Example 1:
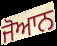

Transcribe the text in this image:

ਜੋਆਨ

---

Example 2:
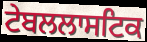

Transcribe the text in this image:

ਟੇਬਲਲਾਸਟਿਕ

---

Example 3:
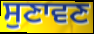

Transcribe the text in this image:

ਸੁਣਾਵਣ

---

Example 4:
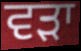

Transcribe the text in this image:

ਵੜਾ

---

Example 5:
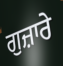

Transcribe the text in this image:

ਗੁਜ਼ਾਰੇ